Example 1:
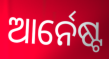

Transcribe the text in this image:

ଆର୍ନେଷ୍ଟ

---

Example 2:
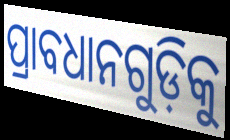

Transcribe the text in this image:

ପ୍ରାବଧାନଗୁଡ଼ିକୁ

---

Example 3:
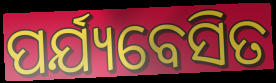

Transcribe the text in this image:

ପର୍ଯ୍ୟବେସିତ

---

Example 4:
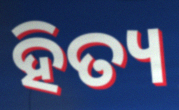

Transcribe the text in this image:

ହିତ୍ୟ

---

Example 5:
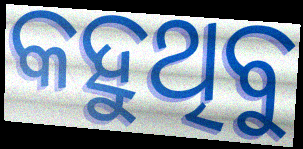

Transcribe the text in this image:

କହୁଥିବୁ